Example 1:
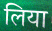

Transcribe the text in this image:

लिया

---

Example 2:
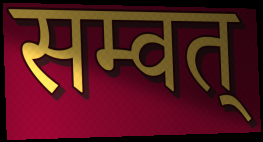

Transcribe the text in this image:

सम्वत्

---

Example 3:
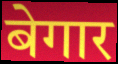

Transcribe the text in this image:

बेगार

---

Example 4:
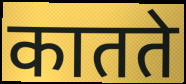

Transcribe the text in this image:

कातते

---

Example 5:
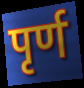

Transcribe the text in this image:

पृर्ण